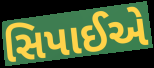
સિપાઈએ